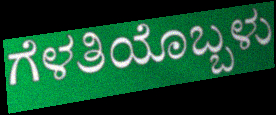
ಗೆಳತಿಯೊಬ್ಬಳು